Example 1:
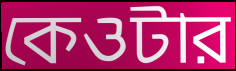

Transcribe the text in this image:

কেওটার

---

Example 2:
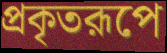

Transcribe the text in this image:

প্রকৃতরূপে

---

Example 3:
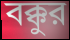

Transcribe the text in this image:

বক্কুর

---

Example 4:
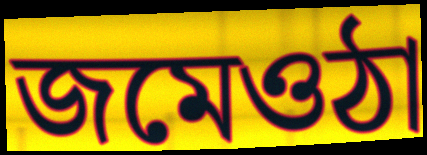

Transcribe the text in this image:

জমেওঠা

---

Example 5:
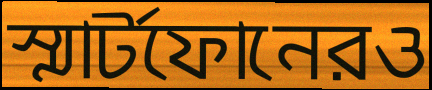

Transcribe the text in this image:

স্মার্টফোনেরও